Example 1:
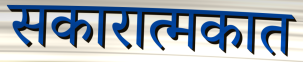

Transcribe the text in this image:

सकारात्मकात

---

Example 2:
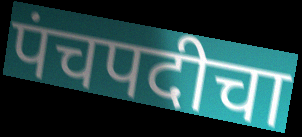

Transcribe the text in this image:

पंचपदीचा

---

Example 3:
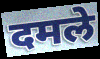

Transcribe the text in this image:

दमले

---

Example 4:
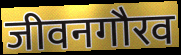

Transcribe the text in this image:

जीवनगौरव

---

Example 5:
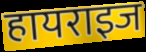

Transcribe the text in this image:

हायराइज